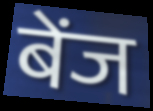
बेंज